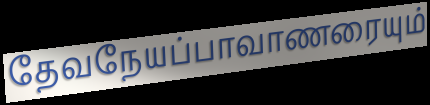
தேவநேயப்பாவாணரையும்